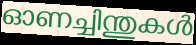
ഓണച്ചിന്തുകൾ